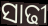
ସାଢୀ